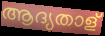
ആദ്യതാള്